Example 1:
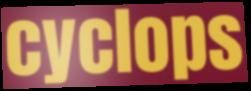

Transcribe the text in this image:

cyclops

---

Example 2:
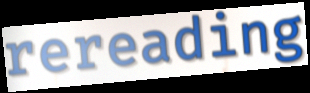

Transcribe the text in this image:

rereading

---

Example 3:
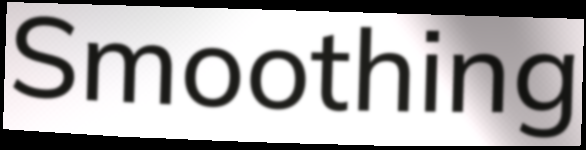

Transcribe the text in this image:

Smoothing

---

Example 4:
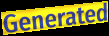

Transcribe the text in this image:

Generated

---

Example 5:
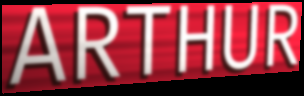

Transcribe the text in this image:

ARTHUR